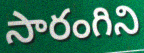
సారంగిని